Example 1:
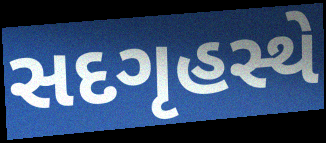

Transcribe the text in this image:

સદગૃહસ્થે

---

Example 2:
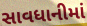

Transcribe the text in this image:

સાવધાનીમાં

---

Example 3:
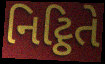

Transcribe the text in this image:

નિટ્ઠિતે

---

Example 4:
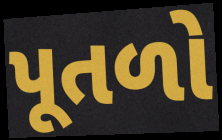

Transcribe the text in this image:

પૂતળો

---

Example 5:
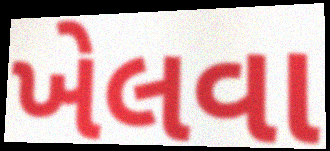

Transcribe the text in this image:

ખેલવા